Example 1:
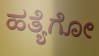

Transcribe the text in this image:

ಹತ್ಯೆಗೋ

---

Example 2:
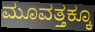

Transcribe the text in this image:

ಮೂವತ್ತಕ್ಕೂ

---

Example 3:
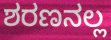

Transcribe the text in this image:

ಶರಣನಲ್ಲ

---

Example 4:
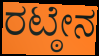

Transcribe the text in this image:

ರಟ್ಠೇನ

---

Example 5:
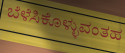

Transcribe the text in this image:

ಬೆಳೆಸಿಕೊಳ್ಳುವಂತಹ